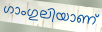
ഗാംഗുലിയാണ്